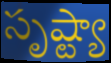
సృష్ట్యా